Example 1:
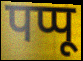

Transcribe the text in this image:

पप्पू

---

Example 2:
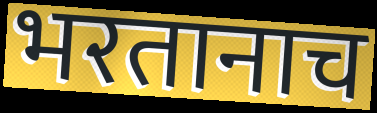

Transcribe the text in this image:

भरतानाच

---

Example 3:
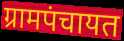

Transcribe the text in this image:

ग्रामपंचायत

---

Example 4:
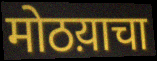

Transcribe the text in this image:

मोठय़ाचा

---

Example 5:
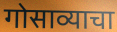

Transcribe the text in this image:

गोसाव्याचा